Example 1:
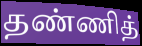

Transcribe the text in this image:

தண்ணித்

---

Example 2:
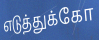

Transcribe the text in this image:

எடுத்துக்கோ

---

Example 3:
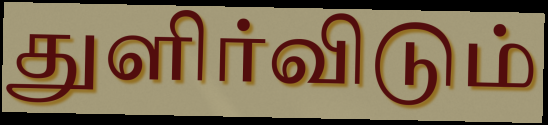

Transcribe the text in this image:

துளிர்விடும்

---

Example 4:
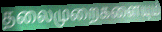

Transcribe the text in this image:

தலைமுறைகளையும்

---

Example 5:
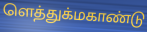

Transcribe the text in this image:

ளெத்துக்மகாண்டு